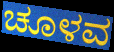
ಚೂಳವ